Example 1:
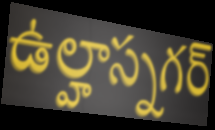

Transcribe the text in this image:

ఉల్హాస్నగర్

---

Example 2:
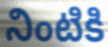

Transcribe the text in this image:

నింటికి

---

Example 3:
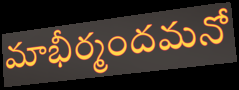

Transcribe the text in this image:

మాభీర్మందమనో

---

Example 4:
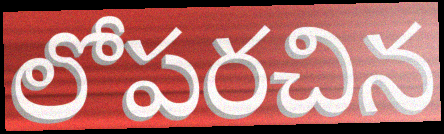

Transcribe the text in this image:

లోపరచిన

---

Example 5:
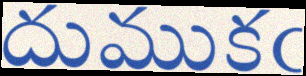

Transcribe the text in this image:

దుముకఁ